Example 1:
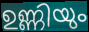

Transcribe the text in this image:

ഉണ്ണിയും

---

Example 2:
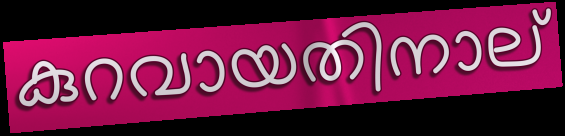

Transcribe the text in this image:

കുറവായതിനാല്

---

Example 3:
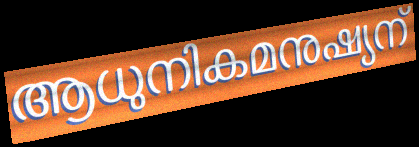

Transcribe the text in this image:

ആധുനികമനുഷ്യന്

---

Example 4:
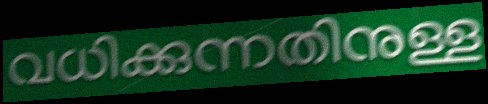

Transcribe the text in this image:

വധിക്കുന്നതിനുള്ള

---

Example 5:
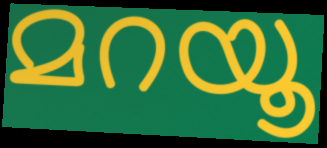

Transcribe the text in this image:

മറയൂ